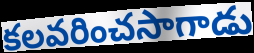
కలవరించసాగాడు